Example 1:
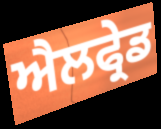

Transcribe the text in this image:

ਐਲਫ੍ਰੇਡ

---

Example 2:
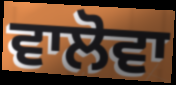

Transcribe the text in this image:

ਵਾਲੋਵਾ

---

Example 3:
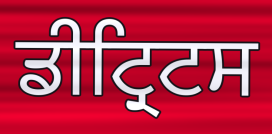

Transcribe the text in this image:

ਡੀਟ੍ਰਿਟਸ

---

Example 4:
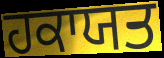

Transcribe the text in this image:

ਹਕਾਯਤ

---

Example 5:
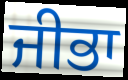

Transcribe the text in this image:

ਜੀਭਾ